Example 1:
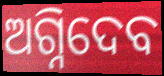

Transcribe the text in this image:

ଅଗ୍ନିଦେବ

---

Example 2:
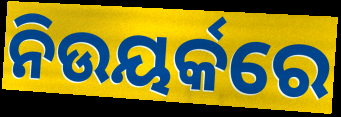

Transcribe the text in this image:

ନିଉୟର୍କରେ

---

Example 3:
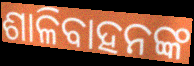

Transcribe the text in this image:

ଶାଳିବାହନଙ୍କ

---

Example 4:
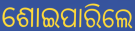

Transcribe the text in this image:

ଶୋଇପାରିଲେ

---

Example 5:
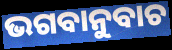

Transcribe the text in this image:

ଭଗବାନୁବାଚ